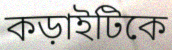
কড়াইটিকে